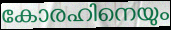
കോരഹിനെയും